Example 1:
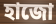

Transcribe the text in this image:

হাজো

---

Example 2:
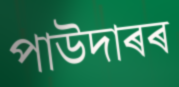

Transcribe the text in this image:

পাউদাৰৰ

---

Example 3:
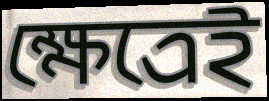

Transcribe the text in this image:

ক্ষেত্ৰেই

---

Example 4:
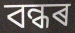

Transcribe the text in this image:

বন্ধৰ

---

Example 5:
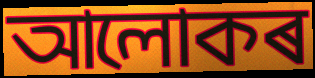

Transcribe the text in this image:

আলোকৰ